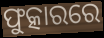
ଫୁତ୍କାରରେ